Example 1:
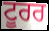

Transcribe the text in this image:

ਟੂਰਰ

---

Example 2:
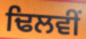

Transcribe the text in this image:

ਢਿਲਵੀਂ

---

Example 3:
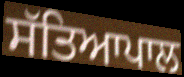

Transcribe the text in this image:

ਸੱਤਿਆਪਾਲ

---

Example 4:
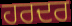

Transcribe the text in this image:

ਹਰਦਰ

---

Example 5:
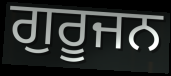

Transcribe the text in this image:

ਗੁਰੂਜਨ